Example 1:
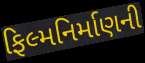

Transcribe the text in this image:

ફિલ્મનિર્માણની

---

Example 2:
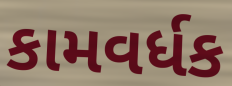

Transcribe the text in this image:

કામવર્ધક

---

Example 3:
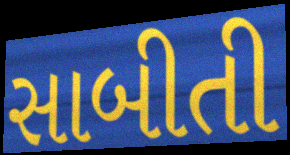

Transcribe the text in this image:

સાબીતી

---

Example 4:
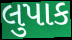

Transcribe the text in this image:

લુપાક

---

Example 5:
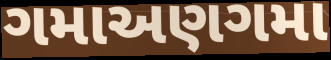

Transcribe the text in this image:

ગમાઅણગમા